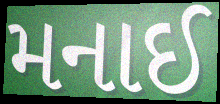
મનાઈ